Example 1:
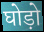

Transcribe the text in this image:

घोड़ो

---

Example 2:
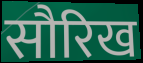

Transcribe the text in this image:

सौरिख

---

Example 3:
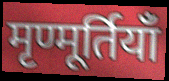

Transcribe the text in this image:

मृण्मूर्तियाँ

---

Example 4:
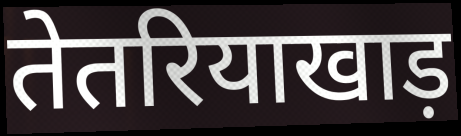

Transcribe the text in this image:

तेतरियाखाड़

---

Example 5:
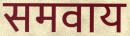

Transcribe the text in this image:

समवाय